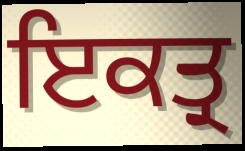
ਇਕਤ੍ਰ